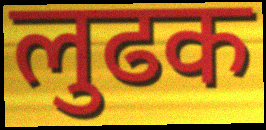
लुढक